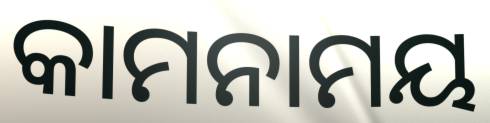
କାମନାମୟ